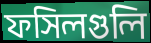
ফসিলগুলি